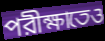
পরীক্ষাতেও